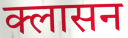
क्लासन